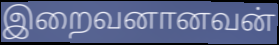
இறைவனானவன்